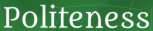
Politeness